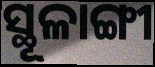
ସ୍ଥୂଳାଙ୍ଗୀ